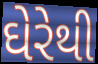
ઘેરેથી